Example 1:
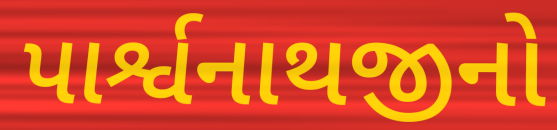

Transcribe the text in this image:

પાર્શ્વનાથજીનો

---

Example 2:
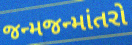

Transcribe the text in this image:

જન્મજન્માંતરો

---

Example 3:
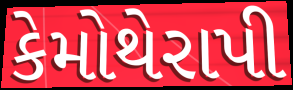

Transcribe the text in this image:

કેમોથેરાપી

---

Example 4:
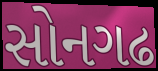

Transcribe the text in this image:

સોનગઢ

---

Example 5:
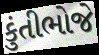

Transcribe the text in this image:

કુંતીભોજે